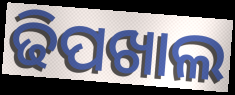
ଢିପଖାଲ